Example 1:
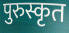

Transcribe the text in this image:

पुरुस्कृत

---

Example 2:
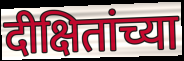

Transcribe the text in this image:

दीक्षितांच्या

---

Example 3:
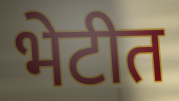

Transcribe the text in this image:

भेटीत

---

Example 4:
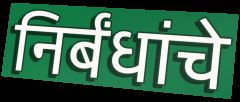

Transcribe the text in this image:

निर्बंधांचे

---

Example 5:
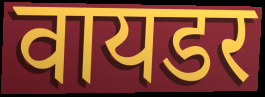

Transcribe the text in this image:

वायडर